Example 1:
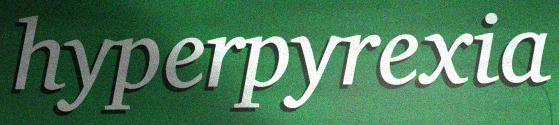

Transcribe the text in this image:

hyperpyrexia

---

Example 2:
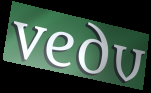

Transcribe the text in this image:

vedu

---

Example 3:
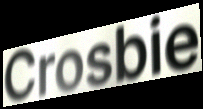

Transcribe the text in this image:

Crosbie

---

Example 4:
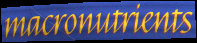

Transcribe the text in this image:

macronutrients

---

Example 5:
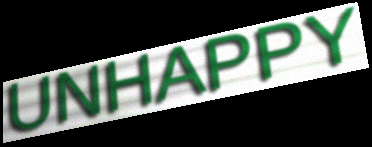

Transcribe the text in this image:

UNHAPPY